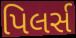
પિલર્સ